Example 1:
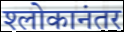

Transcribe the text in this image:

श्लोकानंतर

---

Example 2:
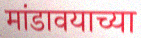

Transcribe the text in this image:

मांडावयाच्या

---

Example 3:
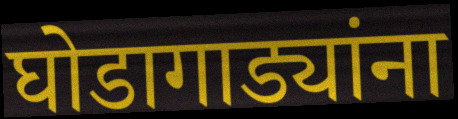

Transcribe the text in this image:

घोडागाड्यांना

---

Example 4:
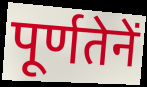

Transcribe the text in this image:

पूर्णतेनें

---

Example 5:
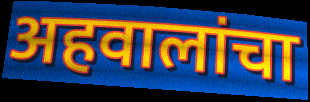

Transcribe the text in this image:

अहवालांचा